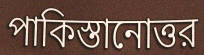
পাকিস্তানোত্তর